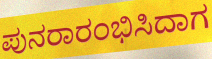
ಪುನರಾರಂಭಿಸಿದಾಗ